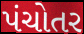
પંચોતર